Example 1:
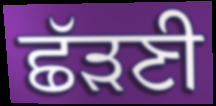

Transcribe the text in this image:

ਛੱੜਣੀ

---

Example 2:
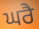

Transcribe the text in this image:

ਘਰੈ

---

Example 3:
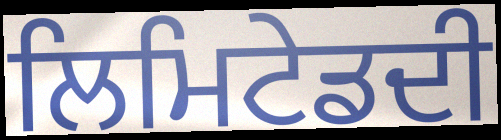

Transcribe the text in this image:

ਲਿਮਿਟੇਡਦੀ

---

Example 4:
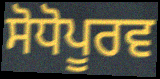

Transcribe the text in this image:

ਸੋਧੋਪੂਰਵ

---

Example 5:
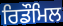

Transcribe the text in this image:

ਰਿਡੌਮਿਲ